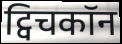
ट्विचकॉन